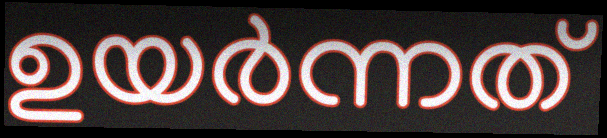
ഉയർന്നത്